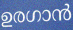
ഉരഗാൻ